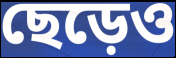
ছেড়েও